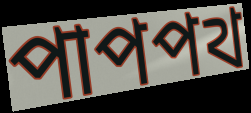
পাপপথ